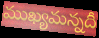
ముఖ్యమన్నదీ